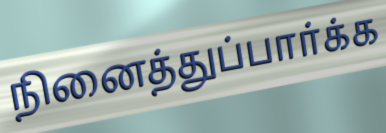
நினைத்துப்பார்க்க